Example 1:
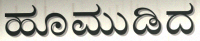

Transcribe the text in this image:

ಹೂಮುಡಿದ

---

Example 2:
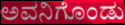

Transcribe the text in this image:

ಅವನಿಗೊಂಡು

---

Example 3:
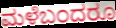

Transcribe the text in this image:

ಮಳೆಬಂದರೂ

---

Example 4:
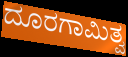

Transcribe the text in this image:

ದೂರಗಾಮಿತ್ವ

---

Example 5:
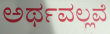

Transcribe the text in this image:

ಅರ್ಥವಲ್ಲವೆ